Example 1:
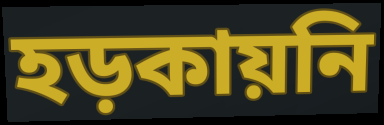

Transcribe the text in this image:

হড়কায়নি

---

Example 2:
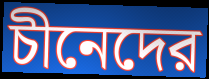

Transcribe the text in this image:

চীনেদের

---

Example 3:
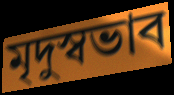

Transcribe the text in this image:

মৃদুস্বভাব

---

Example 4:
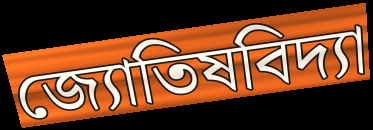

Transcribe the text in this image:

জ্যোতিষবিদ্যা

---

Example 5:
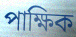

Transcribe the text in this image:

পাক্ষিক